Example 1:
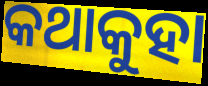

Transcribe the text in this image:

କଥାକୁହା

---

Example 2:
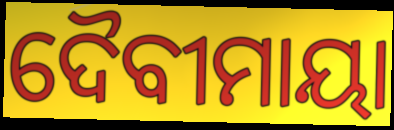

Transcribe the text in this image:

ଦୈବୀମାୟା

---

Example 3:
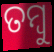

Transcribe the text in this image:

ତମ୍ବୁ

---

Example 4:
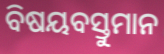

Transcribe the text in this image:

ବିଷୟବସ୍ତୁମାନ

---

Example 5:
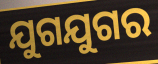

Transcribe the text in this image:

ଯୁଗଯୁଗର